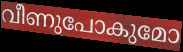
വീണുപോകുമോ